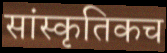
सांस्कृतिकच